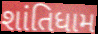
શાંતિધામ